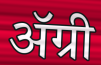
ॲग्री